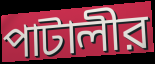
পাটালীর